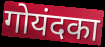
गोयंदका